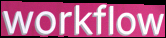
workflow